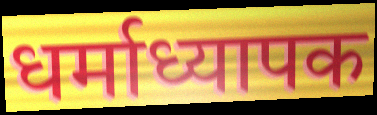
धर्माध्यापक